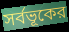
সর্বভূকের